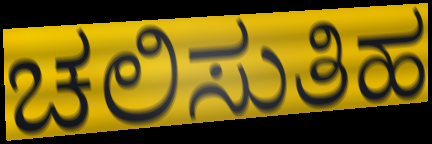
ಚಲಿಸುತಿಹ